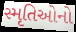
સ્મૃતિઓનો